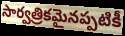
సార్వత్రికమైనప్పటికీ